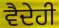
ਵੈਦੇਹੀ